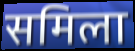
समिला